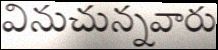
వినుచున్నవారు